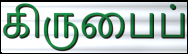
கிருபைப்